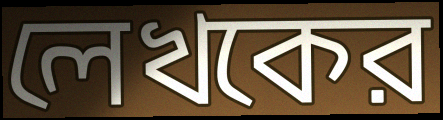
লেখকের